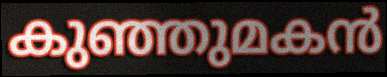
കുഞ്ഞുമകൻ